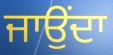
ਜਾਉਂਦਾ